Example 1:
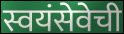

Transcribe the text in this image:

स्वयंसेवेची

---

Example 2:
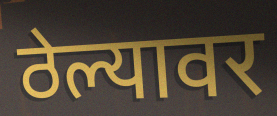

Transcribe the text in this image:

ठेल्यावर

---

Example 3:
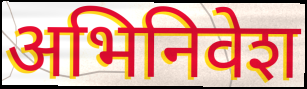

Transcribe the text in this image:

अभिनिवेश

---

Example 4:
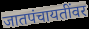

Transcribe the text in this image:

जातपंचायतींवर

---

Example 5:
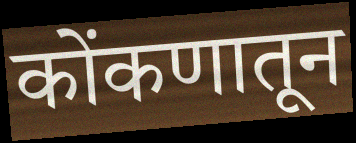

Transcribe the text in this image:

कोंकणातून